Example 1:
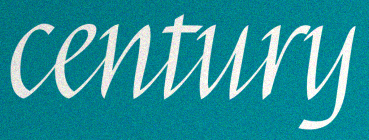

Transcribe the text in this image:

century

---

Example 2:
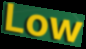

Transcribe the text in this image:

Low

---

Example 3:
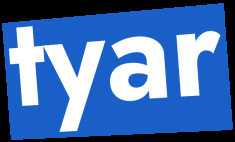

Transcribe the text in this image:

tyar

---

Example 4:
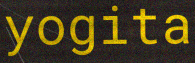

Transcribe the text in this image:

yogita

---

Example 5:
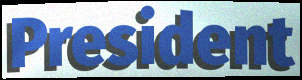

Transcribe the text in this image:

President